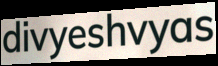
divyeshvyas